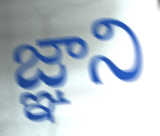
జ్ఞాని